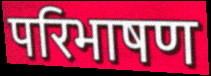
परिभाषण